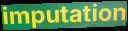
imputation